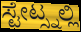
ಸ್ಟೇಟ್ಸ್ನಲ್ಲಿ